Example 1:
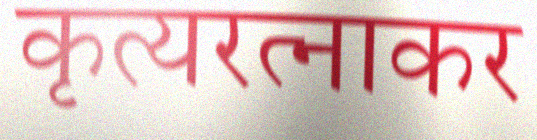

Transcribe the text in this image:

कृत्यरत्नाकर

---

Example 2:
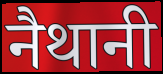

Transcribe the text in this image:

नैथानी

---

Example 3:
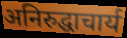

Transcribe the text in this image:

अनिरुद्धाचार्य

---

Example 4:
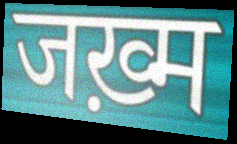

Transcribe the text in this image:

जख़्म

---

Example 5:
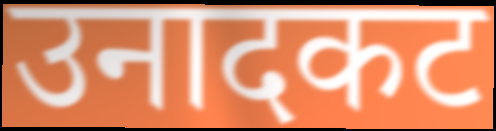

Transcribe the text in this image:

उनादकट